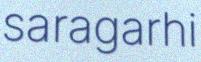
saragarhi